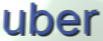
uber